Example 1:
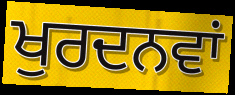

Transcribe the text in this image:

ਖੁਰਦਨਵਾਂ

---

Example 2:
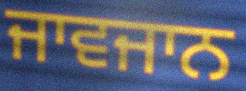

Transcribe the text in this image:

ਜਾਵਜਾਨ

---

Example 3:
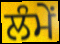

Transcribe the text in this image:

ਲੰਮੇਂ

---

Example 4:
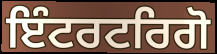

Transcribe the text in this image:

ਇੰਟਰਟਰਿਗੋ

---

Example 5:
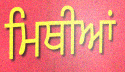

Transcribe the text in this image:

ਮਿਥੀਆਂ